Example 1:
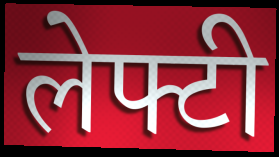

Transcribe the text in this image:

लेफ्टी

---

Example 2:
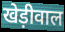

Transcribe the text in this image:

खेड़ीवाल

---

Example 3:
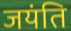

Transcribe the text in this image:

जयंति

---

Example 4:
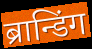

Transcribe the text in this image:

ब्रान्डिंग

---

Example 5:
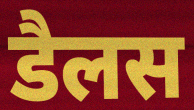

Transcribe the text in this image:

डैलस